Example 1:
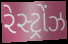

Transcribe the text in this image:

રેસ્ટ્રોંઝ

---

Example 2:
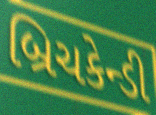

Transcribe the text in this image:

બ્રિચકેન્ડી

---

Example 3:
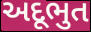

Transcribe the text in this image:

અદૂભુત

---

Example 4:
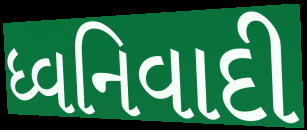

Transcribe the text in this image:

ધ્વનિવાદી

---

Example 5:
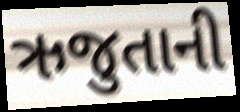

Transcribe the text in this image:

ઋજુતાની